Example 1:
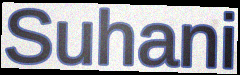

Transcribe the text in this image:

Suhani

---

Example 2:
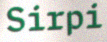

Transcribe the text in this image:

Sirpi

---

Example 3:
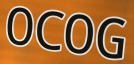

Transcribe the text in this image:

OCOG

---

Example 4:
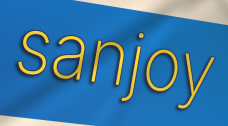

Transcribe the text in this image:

sanjoy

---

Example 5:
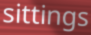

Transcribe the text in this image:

sittings